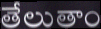
తేలుతాం